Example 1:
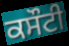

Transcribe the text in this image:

ਕਸੌਟੀ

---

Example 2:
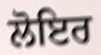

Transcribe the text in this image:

ਲੋਇਰ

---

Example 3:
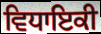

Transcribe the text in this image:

ਵਿਧਾਇਕੀ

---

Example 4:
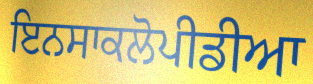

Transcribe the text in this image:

ਇਨਸਾਕਲੋਪੀਡੀਆ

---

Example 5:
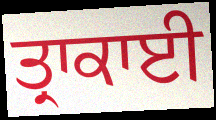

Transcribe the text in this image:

ਤ੍ਰਾਕਾਈ